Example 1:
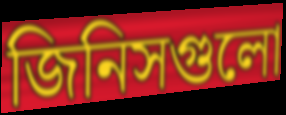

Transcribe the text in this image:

জিনিসগুলো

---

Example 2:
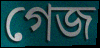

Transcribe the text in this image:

গেজ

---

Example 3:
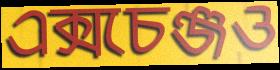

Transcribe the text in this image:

এক্সচেঞ্জও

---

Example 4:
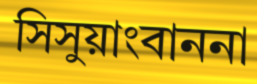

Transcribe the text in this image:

সিসুয়াংবাননা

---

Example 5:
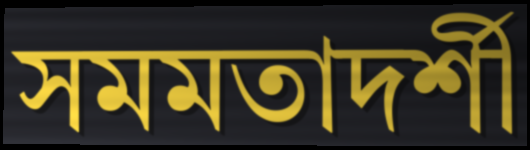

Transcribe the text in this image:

সমমতাদর্শী